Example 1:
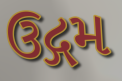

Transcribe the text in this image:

ઉદ્ગમ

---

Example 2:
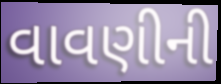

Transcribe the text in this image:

વાવણીની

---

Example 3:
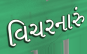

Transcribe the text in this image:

વિચરનારું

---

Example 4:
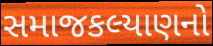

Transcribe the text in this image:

સમાજકલ્યાણનો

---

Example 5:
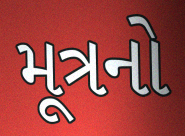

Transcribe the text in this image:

મૂત્રનો